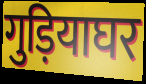
गुड़ियाघर